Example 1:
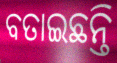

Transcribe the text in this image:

ବତାଇଛନ୍ତି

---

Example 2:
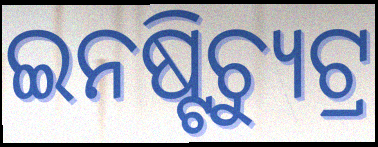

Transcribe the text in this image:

ଇନଷ୍ଟିଚ୍ୟୁଟ୍ର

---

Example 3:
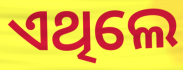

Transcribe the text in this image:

ଏଥିଲେ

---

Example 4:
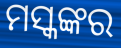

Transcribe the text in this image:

ମସ୍କଙ୍କର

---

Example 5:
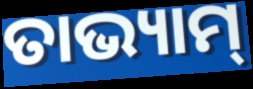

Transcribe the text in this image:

ତାଭ୍ୟାମ୍